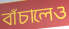
বাঁচালেও